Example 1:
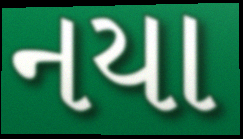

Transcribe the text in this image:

નયા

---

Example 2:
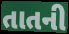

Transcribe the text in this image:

તાતની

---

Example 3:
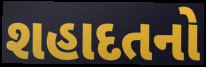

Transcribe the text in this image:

શહાદતનો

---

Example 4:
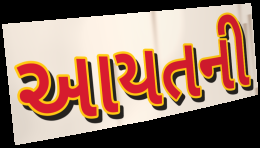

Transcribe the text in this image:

આયતની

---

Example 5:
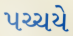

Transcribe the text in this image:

પચ્ચયે